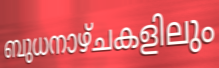
ബുധനാഴ്ചകളിലും